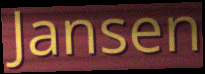
Jansen